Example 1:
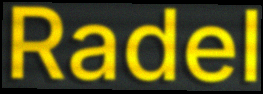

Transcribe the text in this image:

Radel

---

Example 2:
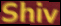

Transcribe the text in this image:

Shiv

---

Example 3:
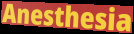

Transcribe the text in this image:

Anesthesia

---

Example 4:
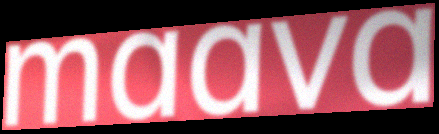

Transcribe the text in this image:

maava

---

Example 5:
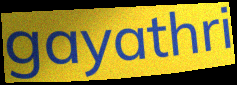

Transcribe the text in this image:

gayathri